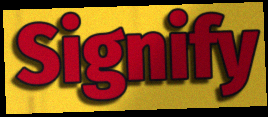
Signify